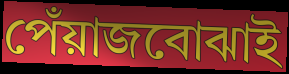
পেঁয়াজবোঝাই